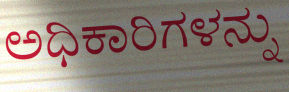
ಅಧಿಕಾರಿಗಳನ್ನು